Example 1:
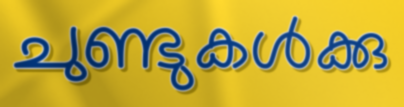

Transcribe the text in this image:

ചുണ്ടുകൾക്കു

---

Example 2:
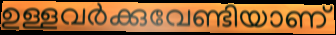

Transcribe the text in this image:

ഉള്ളവർക്കുവേണ്ടിയാണ്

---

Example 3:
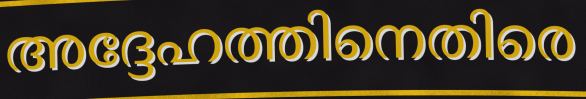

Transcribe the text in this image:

അദ്ദേഹത്തിനെതിരെ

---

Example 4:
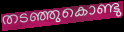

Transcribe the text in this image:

തടഞ്ഞുകൊണ്ടു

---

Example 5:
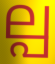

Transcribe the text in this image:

ല്പ